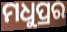
ମଧୁପ୍ରର